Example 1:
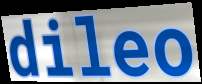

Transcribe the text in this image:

dileo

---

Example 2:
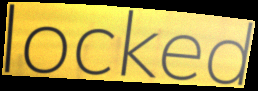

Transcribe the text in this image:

locked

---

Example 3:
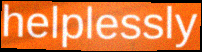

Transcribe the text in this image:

helplessly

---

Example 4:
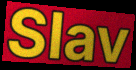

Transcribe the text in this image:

Slav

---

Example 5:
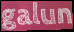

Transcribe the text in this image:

galun